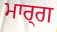
ਮਾਰ੍ਗ